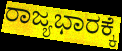
ರಾಜ್ಯಭಾರಕ್ಕೆ